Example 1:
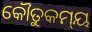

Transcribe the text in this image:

କୌତୁକମ୍‍ୟ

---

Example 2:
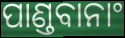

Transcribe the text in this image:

ପାଣ୍ଡବାନାଂ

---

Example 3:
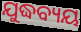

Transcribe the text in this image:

ଯୁଦ୍ଧବ୍ୟୟ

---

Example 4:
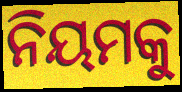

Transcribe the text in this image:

ନିୟମକୁ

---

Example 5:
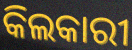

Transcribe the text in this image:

କିଲକାରୀ